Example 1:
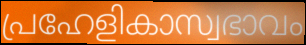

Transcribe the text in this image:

പ്രഹേളികാസ്വഭാവം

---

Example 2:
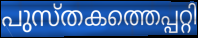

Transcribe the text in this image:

പുസ്തകത്തെപ്പറ്റി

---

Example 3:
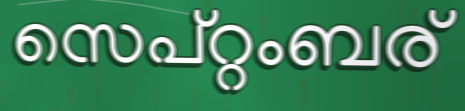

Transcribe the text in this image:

സെപ്റ്റംബര്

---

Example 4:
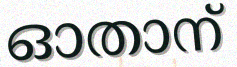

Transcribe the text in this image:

ഓതാന്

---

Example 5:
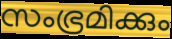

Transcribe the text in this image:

സംഭ്രമിക്കും